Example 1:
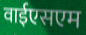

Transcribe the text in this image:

वाईएसएम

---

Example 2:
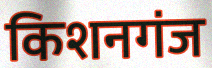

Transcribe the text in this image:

किशनगंज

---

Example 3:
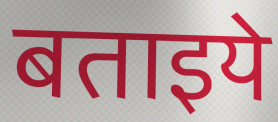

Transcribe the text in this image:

बताइये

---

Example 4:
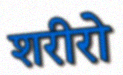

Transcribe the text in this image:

शरीरो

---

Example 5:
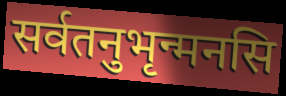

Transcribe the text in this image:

सर्वतनुभृन्मनसि